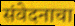
संवेदनाचा